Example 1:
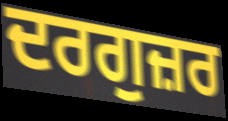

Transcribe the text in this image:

ਦਰਗੁਜ਼ਰ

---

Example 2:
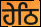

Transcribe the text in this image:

ਹੇਠਿ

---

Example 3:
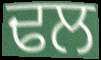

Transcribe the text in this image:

ਢਲ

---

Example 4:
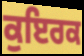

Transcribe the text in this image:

ਕੁਇਰਕ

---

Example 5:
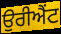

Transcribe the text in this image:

ਉਰੀਐਂਟ